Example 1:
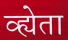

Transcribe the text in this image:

व्ह्येता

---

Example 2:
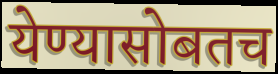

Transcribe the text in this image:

येण्यासोबतच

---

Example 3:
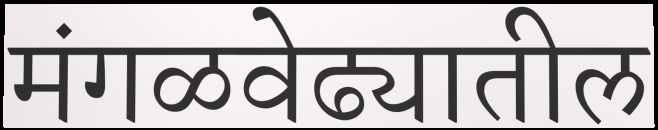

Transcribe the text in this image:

मंगळवेढ्यातील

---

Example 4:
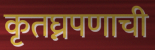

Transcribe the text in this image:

कृतघ्नपणाची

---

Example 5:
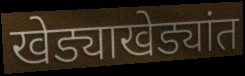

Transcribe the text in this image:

खेड्याखेड्यांत